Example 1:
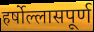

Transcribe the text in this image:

हर्षोल्लासपूर्ण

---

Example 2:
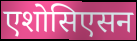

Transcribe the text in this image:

एशोसिएसन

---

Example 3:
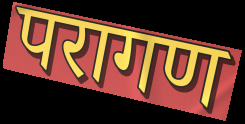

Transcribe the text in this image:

परागण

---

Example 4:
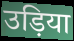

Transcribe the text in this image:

उड़िया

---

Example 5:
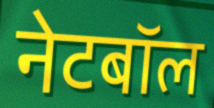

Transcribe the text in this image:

नेटबॉल